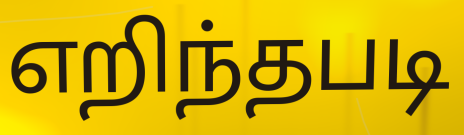
எறிந்தபடி